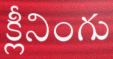
క్లీనింగు